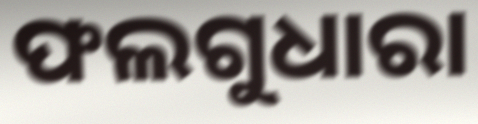
ଫଲଗୁଧାରା